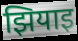
झियाइ